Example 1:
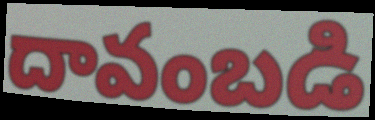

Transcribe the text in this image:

దావంబడి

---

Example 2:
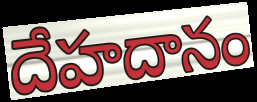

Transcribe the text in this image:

దేహదానం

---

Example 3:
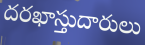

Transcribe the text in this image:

దరఖాస్తుదారులు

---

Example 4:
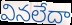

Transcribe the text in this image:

వినలేదా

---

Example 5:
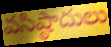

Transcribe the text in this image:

వసిష్ఠాదులు